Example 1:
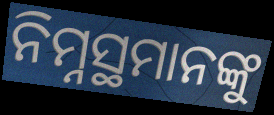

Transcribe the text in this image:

ନିମ୍ନସ୍ଥମାନଙ୍କୁ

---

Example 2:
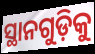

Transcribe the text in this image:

ସ୍ଥାନଗୁଡ଼ିକୁ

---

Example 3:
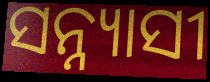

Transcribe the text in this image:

ସନ୍ନ୍ୟାସୀ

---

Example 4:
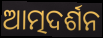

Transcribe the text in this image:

ଆତ୍ମଦର୍ଶନ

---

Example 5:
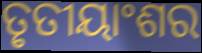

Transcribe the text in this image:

ତୃତୀୟାଂଶର